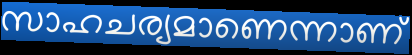
സാഹചര്യമാണെന്നാണ്